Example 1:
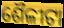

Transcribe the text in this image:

ଶୈଳୀଟା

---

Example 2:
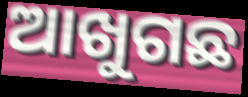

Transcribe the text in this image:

ଆଖୁଗଛ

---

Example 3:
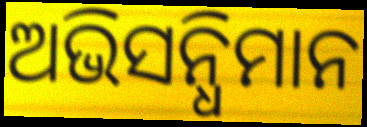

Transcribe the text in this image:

ଅଭିସନ୍ଧିମାନ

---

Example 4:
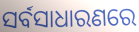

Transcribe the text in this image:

ସର୍ବସାଧାରଣରେ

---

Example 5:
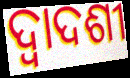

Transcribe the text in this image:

ଦ୍ବାଦଶୀ